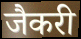
जैकरी